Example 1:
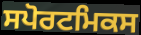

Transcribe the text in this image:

ਸਪੋਰਟਮਿਕਸ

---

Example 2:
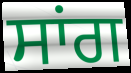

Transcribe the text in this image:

ਸਾਂਗ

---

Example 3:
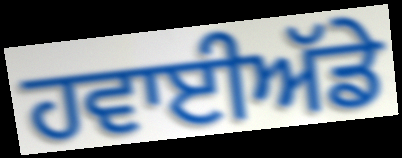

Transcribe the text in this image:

ਹਵਾਈਅੱਡੇ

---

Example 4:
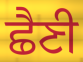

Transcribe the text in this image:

ਛੈਣੀ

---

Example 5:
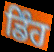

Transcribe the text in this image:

ਡਿੰਹ